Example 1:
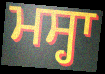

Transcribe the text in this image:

ਮਸ੍ਹਾ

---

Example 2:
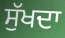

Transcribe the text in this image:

ਸੁੱਖਦਾ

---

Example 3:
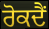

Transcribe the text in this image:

ਰੋਕਦੈਂ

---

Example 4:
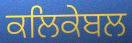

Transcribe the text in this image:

ਕਲਿਕੇਬਲ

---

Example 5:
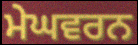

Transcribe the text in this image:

ਮੇਘਵਰਨ